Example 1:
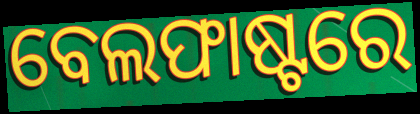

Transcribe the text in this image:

ବେଲଫାଷ୍ଟରେ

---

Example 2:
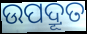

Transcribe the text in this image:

ଉପଦ୍ରୂତ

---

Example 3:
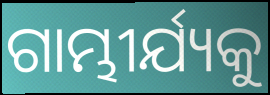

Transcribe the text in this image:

ଗାମ୍ଭୀର୍ଯ୍ୟକୁ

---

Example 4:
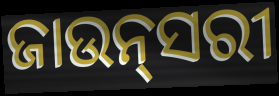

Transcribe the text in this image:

ଜାଉନ୍‌ସରୀ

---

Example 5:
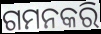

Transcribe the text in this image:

ଗମନକରି